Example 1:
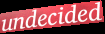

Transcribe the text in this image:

undecided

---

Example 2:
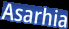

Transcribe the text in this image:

Asarhia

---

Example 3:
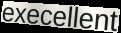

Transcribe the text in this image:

execellent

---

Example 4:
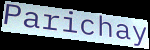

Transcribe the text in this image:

Parichay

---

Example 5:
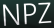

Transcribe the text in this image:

NPZ